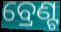
ବ୍ରେଣ୍ଟ